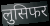
लुसिफर